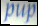
pup